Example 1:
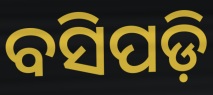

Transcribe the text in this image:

ବସିପଡ଼ି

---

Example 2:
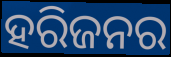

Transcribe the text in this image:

ହରିଜନର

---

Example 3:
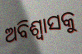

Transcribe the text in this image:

ଅବିଶ୍ୱାସକୁ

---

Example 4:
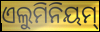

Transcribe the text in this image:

ଏଲୁମିନିୟମ୍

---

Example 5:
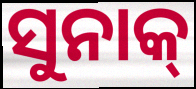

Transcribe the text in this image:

ସୁନାକ୍